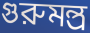
গুরুমন্ত্র